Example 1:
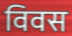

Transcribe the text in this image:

विवस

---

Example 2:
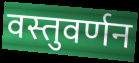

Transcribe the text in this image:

वस्तुवर्णन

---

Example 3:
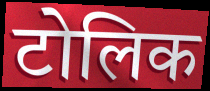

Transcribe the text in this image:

टोलिक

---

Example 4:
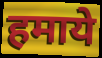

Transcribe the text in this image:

हमाये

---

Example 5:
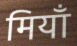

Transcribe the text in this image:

मियाँ